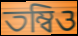
তম্বিও